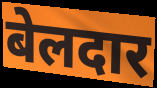
बेलदार